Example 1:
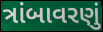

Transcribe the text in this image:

ત્રાંબાવરણું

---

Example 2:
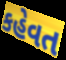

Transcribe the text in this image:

કહેવત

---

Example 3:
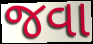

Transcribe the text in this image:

જવા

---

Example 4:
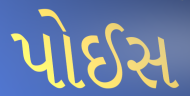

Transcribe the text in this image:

પોઈસ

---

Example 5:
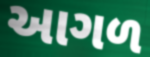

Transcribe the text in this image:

આગળ